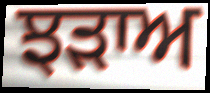
ਝੜਾਅ